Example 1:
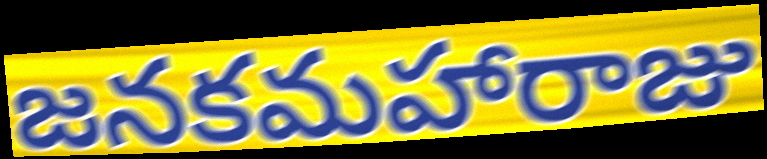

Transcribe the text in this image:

జనకమహారాజు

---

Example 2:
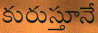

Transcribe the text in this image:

కురుస్తూనే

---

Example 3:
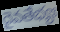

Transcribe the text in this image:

దైవతేభ్యః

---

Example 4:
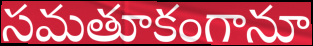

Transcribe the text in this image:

సమతూకంగానూ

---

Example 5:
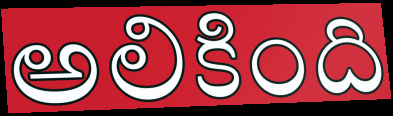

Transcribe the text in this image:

అలికింది